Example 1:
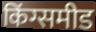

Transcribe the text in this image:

किंग्समीड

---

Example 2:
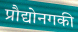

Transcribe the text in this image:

प्रौद्योनगकी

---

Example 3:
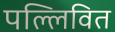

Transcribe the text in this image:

पल्लिवित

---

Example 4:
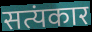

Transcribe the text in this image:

सत्यंकार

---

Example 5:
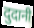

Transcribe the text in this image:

दुदानी